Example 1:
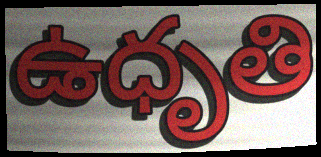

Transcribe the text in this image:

ఉధృతి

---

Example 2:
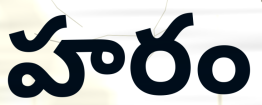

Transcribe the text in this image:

హరం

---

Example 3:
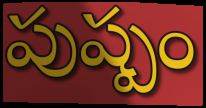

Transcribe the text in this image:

పుష్పం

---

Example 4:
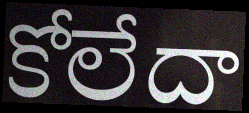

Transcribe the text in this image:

కోలేదా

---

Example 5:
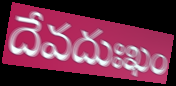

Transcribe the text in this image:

దేవదుఃఖం